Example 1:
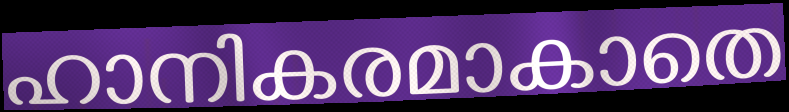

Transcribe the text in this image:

ഹാനികരമാകാതെ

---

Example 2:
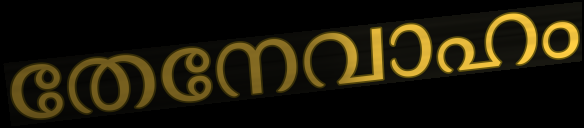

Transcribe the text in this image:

തേനേവാഹം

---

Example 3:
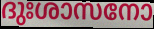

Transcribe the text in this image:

ദുഃശാസനോ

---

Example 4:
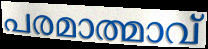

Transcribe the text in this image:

പരമാത്മാവ്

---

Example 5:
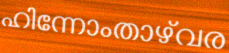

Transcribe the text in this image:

ഹിന്നോംതാഴ്‌വര